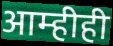
आम्हीही